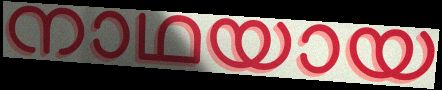
നാഥയായ